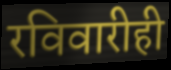
रविवारीही